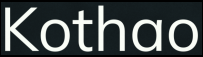
Kothao